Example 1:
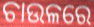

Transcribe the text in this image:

ଚାଉଳରେ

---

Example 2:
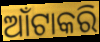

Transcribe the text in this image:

ଆଁଟାକରି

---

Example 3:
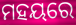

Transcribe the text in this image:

ମହୟରେ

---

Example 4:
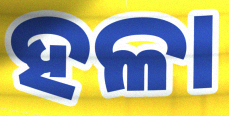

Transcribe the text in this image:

ହଳା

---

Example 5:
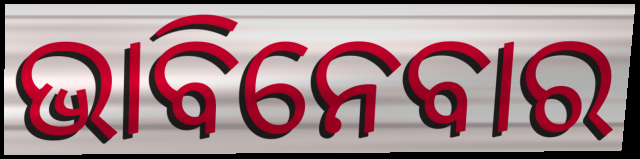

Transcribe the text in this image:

ଭାବିନେବାର